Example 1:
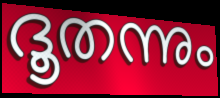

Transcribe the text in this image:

ദൂതന്നും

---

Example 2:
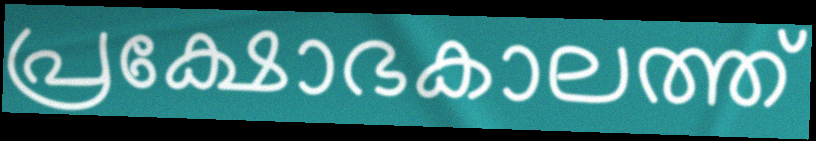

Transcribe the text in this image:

പ്രക്ഷോഭകാലത്ത്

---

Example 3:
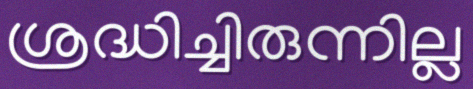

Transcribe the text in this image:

ശ്രദ്ധിച്ചിരുന്നില്ല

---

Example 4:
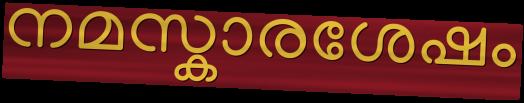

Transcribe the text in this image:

നമസ്കാരശേഷം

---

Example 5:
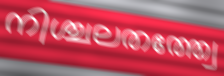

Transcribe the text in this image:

നിശ്ചലതത്ത്വേ